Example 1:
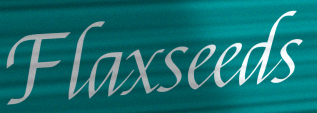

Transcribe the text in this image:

Flaxseeds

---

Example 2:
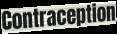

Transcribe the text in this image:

Contraception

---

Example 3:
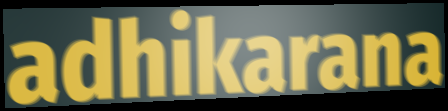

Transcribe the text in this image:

adhikarana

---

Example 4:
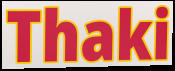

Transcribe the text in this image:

Thaki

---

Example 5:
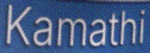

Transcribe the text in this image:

Kamathi